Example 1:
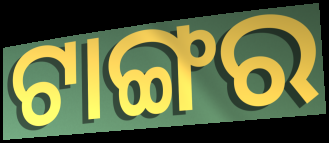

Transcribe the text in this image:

ଟାଙ୍ଗର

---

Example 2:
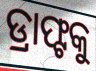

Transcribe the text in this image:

ଡ୍ରାଫ୍ଟକୁ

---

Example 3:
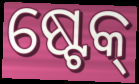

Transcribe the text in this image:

ଷ୍ଟେକ୍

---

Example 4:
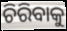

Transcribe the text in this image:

ଚିରିବାକୁ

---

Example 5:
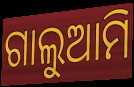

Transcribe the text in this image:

ଗାଲୁଆମି